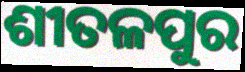
ଶୀତଳପୁର